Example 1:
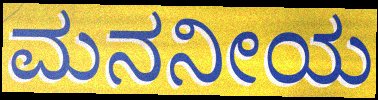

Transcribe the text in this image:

ಮನನೀಯ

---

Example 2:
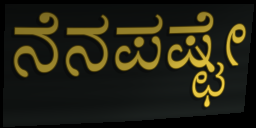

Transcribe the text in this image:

ನೆನಪಷ್ಟೇ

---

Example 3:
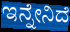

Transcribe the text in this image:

ಇನ್ನೇನಿದೆ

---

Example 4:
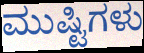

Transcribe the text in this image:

ಮುಷ್ಟಿಗಳು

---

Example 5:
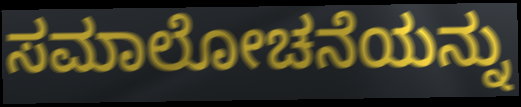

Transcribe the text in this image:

ಸಮಾಲೋಚನೆಯನ್ನು